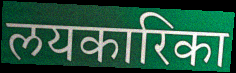
लयकारिका